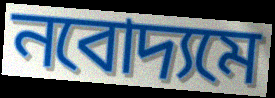
নবোদ্যমে